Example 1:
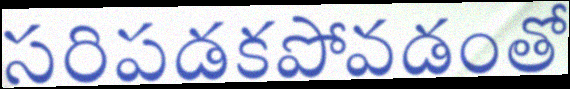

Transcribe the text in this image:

సరిపడకపోవడంతో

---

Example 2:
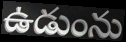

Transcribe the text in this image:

ఉడుంను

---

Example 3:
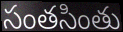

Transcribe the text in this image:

సంతసింతు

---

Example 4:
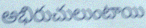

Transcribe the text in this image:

అభిరుచులుంటాయి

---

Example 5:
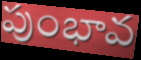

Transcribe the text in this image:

పుంభావ